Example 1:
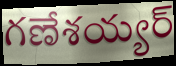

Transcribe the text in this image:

గణేశయ్యర్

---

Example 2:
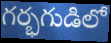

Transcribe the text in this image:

గర్భగుడిలో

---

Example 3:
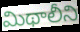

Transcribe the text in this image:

మిథాలీని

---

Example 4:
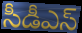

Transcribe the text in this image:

సీడీఎస్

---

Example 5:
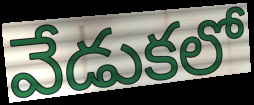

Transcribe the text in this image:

వేడుకలో